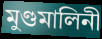
মুণ্ডমালিনী